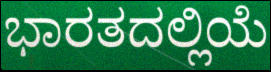
ಭಾರತದಲ್ಲಿಯೆ